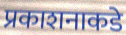
प्रकाशनाकडे